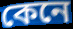
কেনে